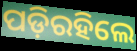
ପଡ଼ିରହିଲେ